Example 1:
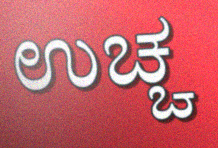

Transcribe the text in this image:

ಉಚ್ಚ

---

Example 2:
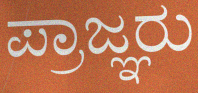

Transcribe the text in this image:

ಪ್ರಾಜ್ಞರು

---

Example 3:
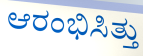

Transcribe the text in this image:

ಆರಂಭಿಸಿತ್ತು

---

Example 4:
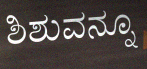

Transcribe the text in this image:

ಶಿಶುವನ್ನೂ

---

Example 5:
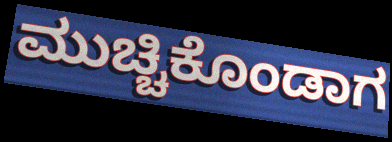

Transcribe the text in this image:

ಮುಚ್ಚಿಕೊಂಡಾಗ